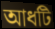
আধটি